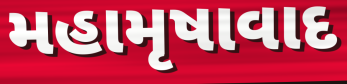
મહામૃષાવાદ